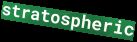
stratospheric